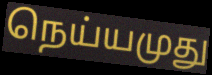
நெய்யமுது